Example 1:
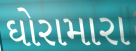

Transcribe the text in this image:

ઘોરામારા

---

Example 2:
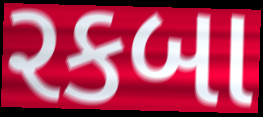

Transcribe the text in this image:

રકબા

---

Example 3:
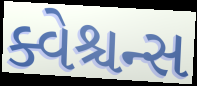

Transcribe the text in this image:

ક્વેશ્ચન્સ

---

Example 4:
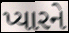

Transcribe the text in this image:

પ્યારને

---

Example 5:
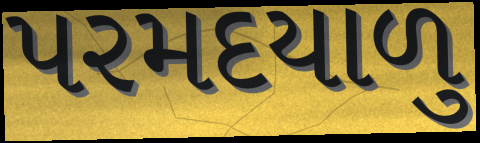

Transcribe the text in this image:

પરમદયાળુ